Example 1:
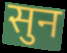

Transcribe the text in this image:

सुन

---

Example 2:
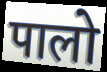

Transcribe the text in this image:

पालो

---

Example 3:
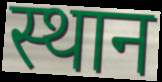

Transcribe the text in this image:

स्थान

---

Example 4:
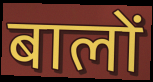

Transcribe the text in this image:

बालों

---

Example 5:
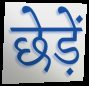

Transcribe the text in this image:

छेड़ें